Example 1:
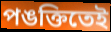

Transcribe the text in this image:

পঙক্তিতেই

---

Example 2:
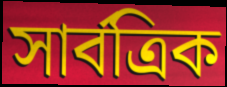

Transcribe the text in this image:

সার্বত্রিক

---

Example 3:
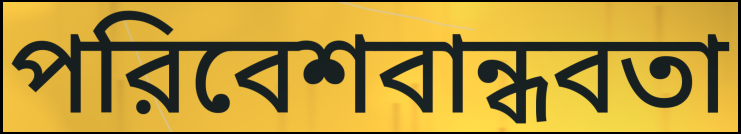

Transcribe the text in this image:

পরিবেশবান্ধবতা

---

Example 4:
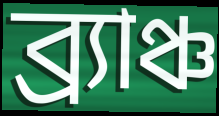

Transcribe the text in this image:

ব্র্যাঞ্চ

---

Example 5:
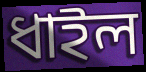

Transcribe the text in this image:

ধাইল